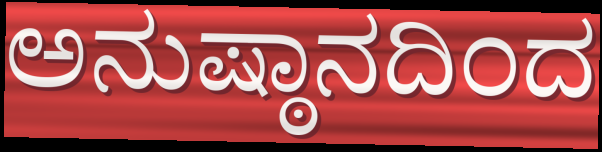
ಅನುಷ್ಠಾನದಿಂದ